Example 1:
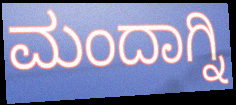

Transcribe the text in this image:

ಮಂದಾಗ್ನಿ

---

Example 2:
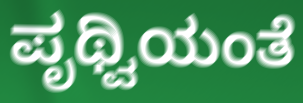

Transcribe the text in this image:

ಪೃಥ್ವಿಯಂತೆ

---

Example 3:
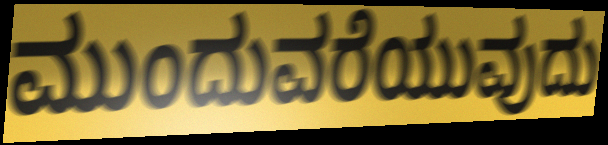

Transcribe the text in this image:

ಮುಂದುವರೆಯುವುದು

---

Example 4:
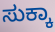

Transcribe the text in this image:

ಸುಕ್ಕಾ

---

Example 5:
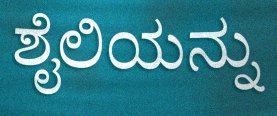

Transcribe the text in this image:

ಶೈಲಿಯನ್ನು